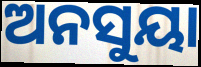
ଅନସୁୟା